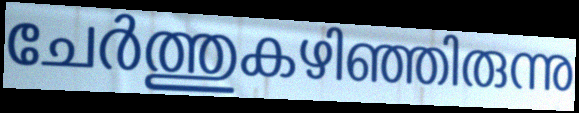
ചേർത്തുകഴിഞ്ഞിരുന്നു